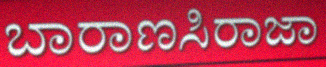
ಬಾರಾಣಸಿರಾಜಾ